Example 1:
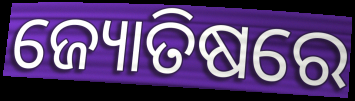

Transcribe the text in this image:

ଜ୍ୟୋତିଷରେ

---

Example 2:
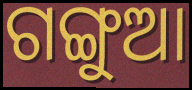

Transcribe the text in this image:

ଗଙ୍ଗୁଆ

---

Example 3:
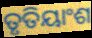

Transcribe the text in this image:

ତୃତିୟାଂଶ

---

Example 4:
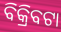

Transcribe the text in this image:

ବିକ୍ରିବଟା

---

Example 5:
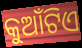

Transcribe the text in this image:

କୁଆଁଟିଏ